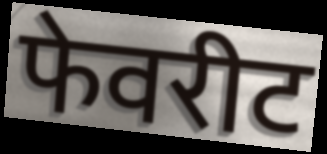
फेवरीट